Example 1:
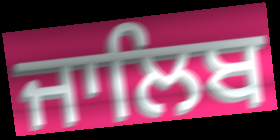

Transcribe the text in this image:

ਜਾਲਿਬ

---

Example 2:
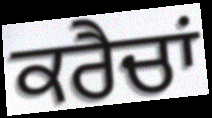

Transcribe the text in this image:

ਕਰੈਚਾਂ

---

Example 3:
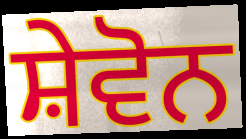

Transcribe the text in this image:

ਸ਼ੇਵੋਨ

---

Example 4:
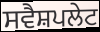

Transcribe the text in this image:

ਸਵੈਸ਼ਪਲੇਟ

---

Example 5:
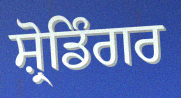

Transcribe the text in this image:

ਸ਼੍ਰੋਡਿੰਗਰ